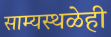
साम्यस्थळेही